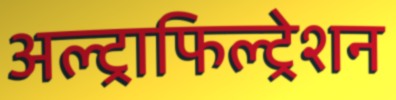
अल्ट्राफिल्ट्रेशन